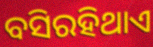
ବସିରହିଥାଏ